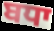
ਬਧਾ